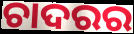
ଚାଦରର